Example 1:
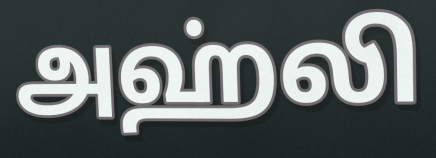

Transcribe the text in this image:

அஹ்லி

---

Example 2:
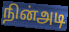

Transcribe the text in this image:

நின்அடி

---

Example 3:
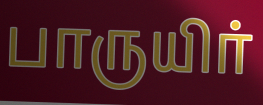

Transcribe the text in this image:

பாருயிர்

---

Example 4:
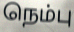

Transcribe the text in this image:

நெம்பு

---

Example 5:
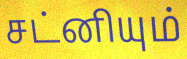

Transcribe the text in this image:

சட்னியும்